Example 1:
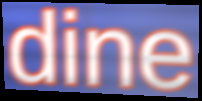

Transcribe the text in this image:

dine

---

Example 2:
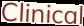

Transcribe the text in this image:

Clinical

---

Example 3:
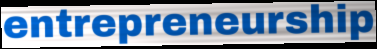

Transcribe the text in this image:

entrepreneurship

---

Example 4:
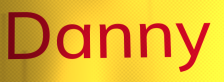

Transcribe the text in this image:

Danny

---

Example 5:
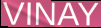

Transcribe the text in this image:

VINAY